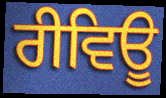
ਰੀਵਿਊ